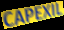
CAPEXIL